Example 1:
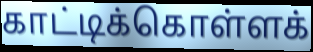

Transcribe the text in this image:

காட்டிக்கொள்ளக்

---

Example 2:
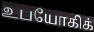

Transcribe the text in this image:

உபயோகிக்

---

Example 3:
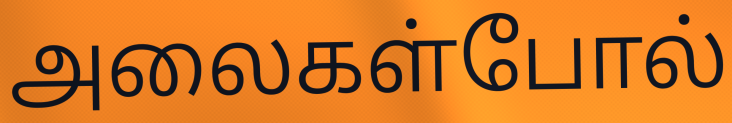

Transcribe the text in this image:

அலைகள்போல்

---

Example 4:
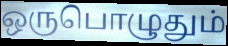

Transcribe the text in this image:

ஒருபொழுதும்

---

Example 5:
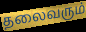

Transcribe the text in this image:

தலைவரும்